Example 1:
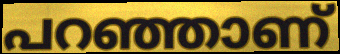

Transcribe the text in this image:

പറഞ്ഞാണ്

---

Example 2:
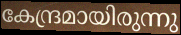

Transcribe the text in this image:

കേന്ദ്രമായിരുന്നു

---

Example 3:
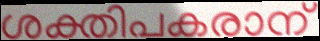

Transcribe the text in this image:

ശക്തിപകരാന്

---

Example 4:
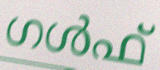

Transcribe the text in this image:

ഗൾഫ്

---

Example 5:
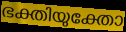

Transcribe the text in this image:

ഭക്തിയുക്തോ